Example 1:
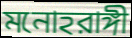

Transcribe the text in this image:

মনোহরাঙ্গী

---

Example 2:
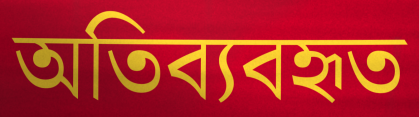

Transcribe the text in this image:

অতিব্যবহৃত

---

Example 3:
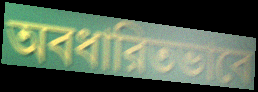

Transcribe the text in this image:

অবধারিতভাবে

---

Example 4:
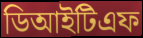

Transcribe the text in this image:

ডিআইটিএফ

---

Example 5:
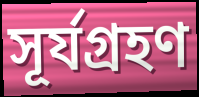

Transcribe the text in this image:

সূর্যগ্রহণ